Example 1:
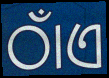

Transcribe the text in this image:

ଠାଁଏ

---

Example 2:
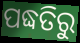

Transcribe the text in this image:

ପଦ୍ଧତିରୁ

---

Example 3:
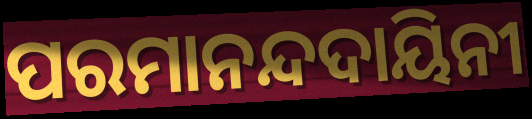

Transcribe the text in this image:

ପରମାନନ୍ଦଦାୟିନୀ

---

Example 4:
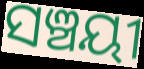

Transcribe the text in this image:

ସଞ୍ଚୟୀ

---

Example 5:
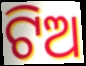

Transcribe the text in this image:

ଟିଅ